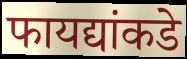
फायद्यांकडे